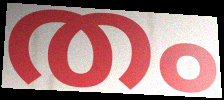
തം